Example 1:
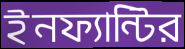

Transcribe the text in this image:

ইনফ্যান্টির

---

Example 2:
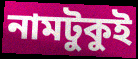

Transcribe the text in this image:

নামটুকুই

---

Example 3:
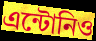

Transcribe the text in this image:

এন্টোনিও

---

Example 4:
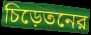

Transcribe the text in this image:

চিড়েতনের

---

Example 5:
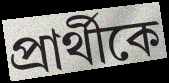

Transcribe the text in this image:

প্রার্থীকে